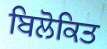
ਬਿਲੋਕਿਤ